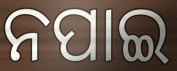
ନପାଇ